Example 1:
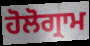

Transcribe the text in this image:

ਹੋਲੋਗ੍ਰਾਮ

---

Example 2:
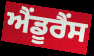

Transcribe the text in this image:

ਐਂਡੂਰੈਂਸ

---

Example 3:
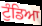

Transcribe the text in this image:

ਟੁੰਡਿਆ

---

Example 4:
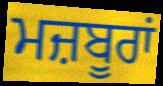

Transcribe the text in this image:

ਮਜ਼ਬੂਰਾਂ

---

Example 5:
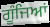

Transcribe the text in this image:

ਗੂੰਜਿਆਂ